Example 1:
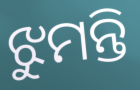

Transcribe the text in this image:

ଝୁମନ୍ତି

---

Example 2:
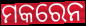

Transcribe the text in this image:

ମକରେନ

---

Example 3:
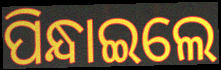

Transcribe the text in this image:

ପିନ୍ଧାଇଲେ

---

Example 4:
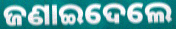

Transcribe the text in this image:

ଜଣାଇଦେଲେ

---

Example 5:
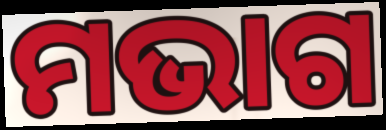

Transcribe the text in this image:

ମଭାଗ